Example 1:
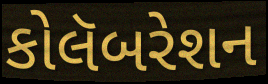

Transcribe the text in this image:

કોલૅબરેશન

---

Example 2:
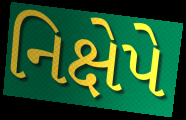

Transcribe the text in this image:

નિક્ષેપે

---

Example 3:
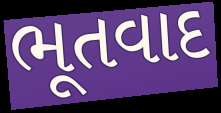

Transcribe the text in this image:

ભૂતવાદ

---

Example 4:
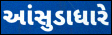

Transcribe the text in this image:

આંસુડાધારે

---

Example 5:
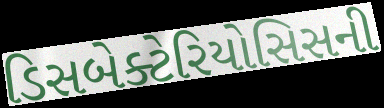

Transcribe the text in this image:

ડિસબેક્ટેરિયોસિસની